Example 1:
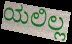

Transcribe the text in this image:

ಯಲಿಲ್ಲ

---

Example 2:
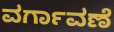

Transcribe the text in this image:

ವರ್ಗಾವಣೆ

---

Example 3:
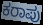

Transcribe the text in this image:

ಕರಾಪು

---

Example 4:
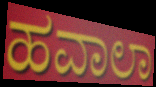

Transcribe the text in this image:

ಹವಾಲಾ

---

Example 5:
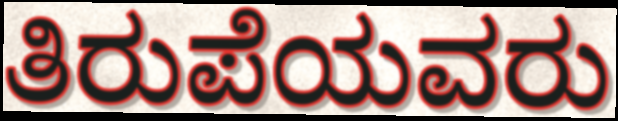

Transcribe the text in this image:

ತಿರುಪೆಯವರು